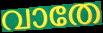
വാതേ